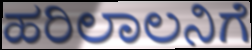
ಹರಿಲಾಲನಿಗೆ